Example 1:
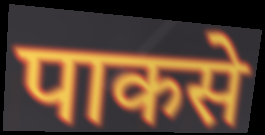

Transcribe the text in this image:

पाकसे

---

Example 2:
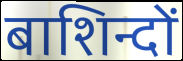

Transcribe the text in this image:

बाशिन्दों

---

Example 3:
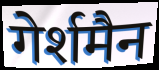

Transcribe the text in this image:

गेर्शमैन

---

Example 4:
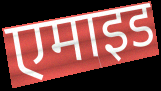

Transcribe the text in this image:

एमाइड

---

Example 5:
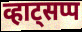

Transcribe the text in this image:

व्हाट्सप्प